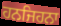
ਹਨਜਿਹਨਾ